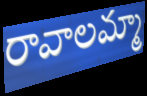
రావాలమ్మా